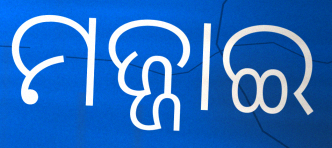
ମଜ୍ଜାଇ